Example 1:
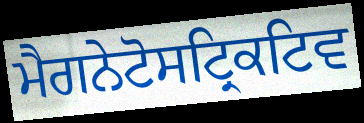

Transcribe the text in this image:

ਮੈਗਨੇਟੋਸਟ੍ਰਿਕਟਿਵ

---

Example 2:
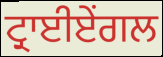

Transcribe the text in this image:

ਟ੍ਰਾਈਏਂਗਲ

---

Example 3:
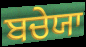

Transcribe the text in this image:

ਬਚੇਯਾ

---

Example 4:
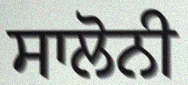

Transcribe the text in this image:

ਸਾਲੋਨੀ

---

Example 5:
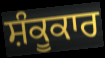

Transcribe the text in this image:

ਸ਼ੰਕੂਕਾਰ